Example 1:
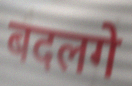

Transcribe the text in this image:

बदलगे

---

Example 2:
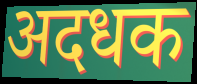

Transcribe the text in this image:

अदधक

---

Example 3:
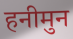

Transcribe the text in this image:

हनीमुन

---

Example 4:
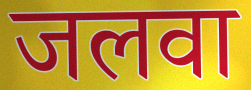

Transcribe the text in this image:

जलवा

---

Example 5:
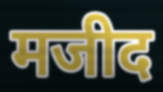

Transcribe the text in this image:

मजीद